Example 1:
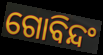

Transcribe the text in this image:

ଗୋବିନ୍ଦଂ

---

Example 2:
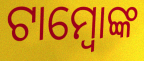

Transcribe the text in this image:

ଟାମ୍ବୋଙ୍କ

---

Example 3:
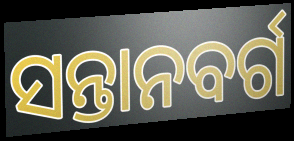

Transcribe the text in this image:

ସନ୍ତାନବର୍ଗ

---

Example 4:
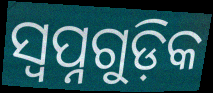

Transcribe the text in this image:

ସ୍ୱପ୍ନଗୁଡ଼ିକ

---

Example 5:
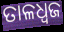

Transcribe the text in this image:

ତାଳଧ୍ୱଜ